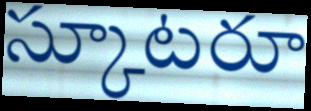
స్కూటరూ